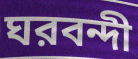
ঘরবন্দী